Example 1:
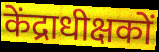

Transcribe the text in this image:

केंद्राधीक्षकों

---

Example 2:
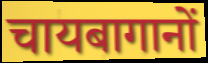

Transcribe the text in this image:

चायबागानों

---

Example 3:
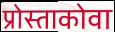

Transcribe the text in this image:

प्रोस्ताकोवा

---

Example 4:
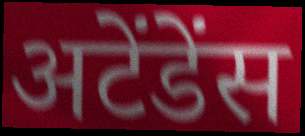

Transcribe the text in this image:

अटेंडेंस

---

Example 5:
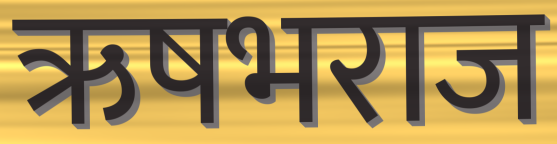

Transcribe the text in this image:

ऋषभराज